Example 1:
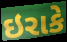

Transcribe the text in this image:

ઇરાકે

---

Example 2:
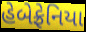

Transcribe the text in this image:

હેબેફ્રેનિયા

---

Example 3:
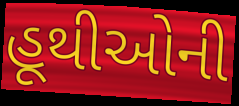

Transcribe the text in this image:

હૂથીઓની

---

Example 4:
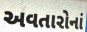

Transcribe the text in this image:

અવતારોનાં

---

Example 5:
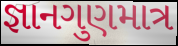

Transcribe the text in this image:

જ્ઞાનગુણમાત્ર